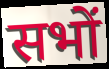
सभों